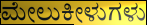
ಮೇಲುಕೀಳುಗಳು